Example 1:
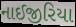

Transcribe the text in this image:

નાઈજીરિયા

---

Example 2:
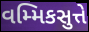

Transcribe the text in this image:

વમ્મિકસુત્તે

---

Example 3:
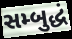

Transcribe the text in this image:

સમ્બુદ્ધં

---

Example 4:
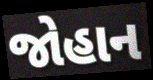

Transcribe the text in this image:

જોહાન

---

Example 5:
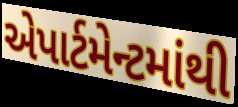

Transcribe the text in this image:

એપાર્ટમેન્ટમાંથી